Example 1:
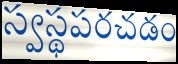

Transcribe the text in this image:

స్వస్థపరచడం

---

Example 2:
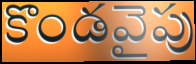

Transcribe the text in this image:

కొండవైపు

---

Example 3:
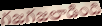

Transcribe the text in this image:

గజగజలాడింది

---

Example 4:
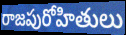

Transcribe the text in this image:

రాజపురోహితులు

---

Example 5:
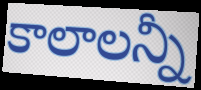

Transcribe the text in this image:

కాలాలన్నీ